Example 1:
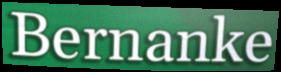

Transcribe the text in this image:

Bernanke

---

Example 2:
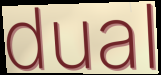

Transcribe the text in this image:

dual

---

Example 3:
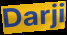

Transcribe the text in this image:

Darji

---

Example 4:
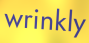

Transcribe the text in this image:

wrinkly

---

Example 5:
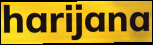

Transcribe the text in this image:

harijana